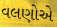
વલણોએ